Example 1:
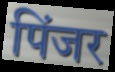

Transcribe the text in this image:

पिंजर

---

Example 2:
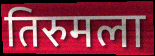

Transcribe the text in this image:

तिरुमला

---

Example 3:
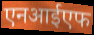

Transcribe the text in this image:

एनआईएफ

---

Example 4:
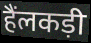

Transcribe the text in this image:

हैंलकड़ी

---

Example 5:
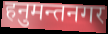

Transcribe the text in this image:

हनुमन्तनगर